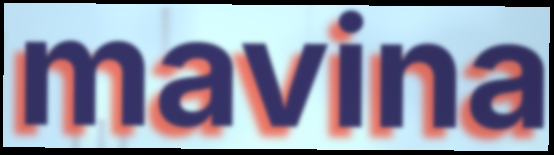
mavina